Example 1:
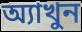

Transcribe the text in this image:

অ্যাখুন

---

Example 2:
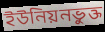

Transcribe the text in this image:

ইউনিয়নভুক্ত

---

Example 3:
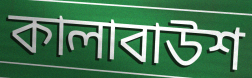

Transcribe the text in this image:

কালাবাউশ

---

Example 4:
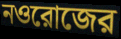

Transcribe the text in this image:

নওরোজের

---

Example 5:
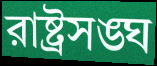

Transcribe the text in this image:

রাষ্ট্রসঙ্ঘ